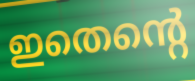
ഇതെന്റെ